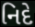
નિદે